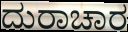
ದುರಾಚಾರ